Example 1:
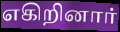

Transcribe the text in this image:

எகிறினார்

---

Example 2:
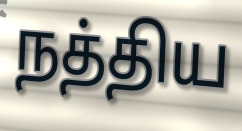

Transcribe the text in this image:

நத்திய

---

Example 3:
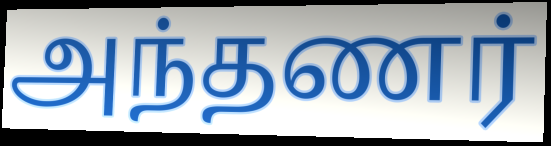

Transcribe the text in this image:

அந்தணர்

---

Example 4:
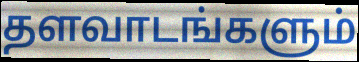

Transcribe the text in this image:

தளவாடங்களும்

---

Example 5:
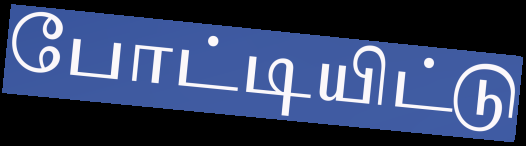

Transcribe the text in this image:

போட்டியிட்டு